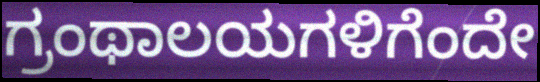
ಗ್ರಂಥಾಲಯಗಳಿಗೆಂದೇ